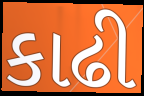
કાઢી